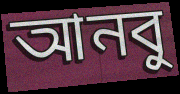
আনবু